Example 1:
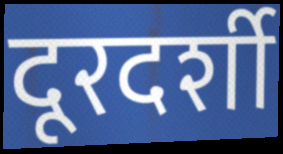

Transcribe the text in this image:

दूरदर्शी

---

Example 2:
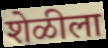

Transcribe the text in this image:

शेळीला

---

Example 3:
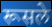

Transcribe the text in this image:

रूसले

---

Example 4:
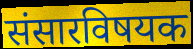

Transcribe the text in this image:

संसारविषयक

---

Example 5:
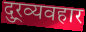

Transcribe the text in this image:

दुर्व्यवहार